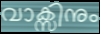
വാക്സിനും